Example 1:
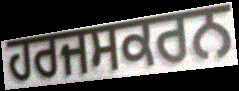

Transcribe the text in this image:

ਹਰਜਸਕਰਨ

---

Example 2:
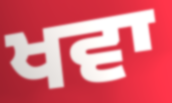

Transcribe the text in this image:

ਖਵਾ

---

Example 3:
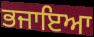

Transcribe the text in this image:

ਭਜਾਇਆ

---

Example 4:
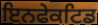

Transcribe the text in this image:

ਇਨਫੇਕਟਿਡ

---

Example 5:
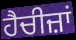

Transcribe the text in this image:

ਹੈਚੀਜ਼ਾਂ